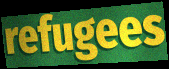
refugees